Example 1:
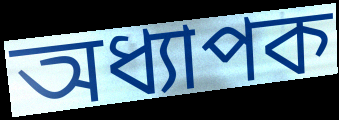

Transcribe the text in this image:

অধ্যাপক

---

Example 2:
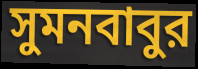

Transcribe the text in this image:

সুমনবাবুর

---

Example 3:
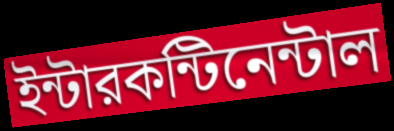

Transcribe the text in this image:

ইন্টারকন্টিনেন্টাল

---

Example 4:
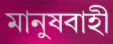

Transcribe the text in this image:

মানুষবাহী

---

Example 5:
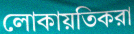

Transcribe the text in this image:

লোকায়তিকরা